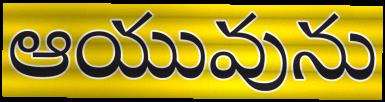
ఆయువును